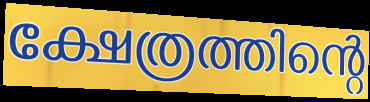
ക്ഷേത്രത്തിന്റെ